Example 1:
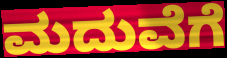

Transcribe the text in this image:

ಮದುವೆಗೆ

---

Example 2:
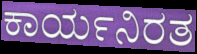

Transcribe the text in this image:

ಕಾರ್ಯನಿರತ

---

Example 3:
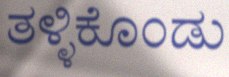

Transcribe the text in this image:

ತಳ್ಳಿಕೊಂಡು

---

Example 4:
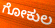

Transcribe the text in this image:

ಗೋಕುಲ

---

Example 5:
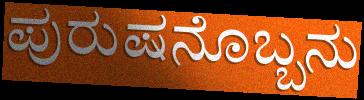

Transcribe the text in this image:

ಪುರುಷನೊಬ್ಬನು